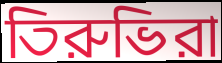
তিরুভিরা